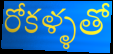
రోకళ్ళతో